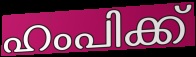
ഹംപിക്ക്